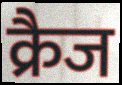
क्रैज